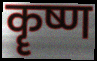
कॄष्ण